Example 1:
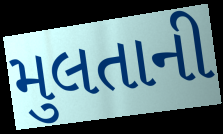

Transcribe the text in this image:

મુલતાની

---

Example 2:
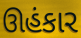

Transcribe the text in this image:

ઊહંકાર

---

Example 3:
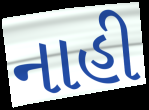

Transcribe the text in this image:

નાહી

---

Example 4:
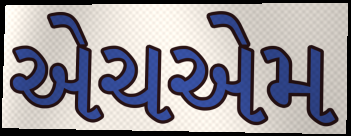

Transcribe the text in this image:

એચએમ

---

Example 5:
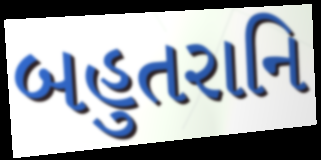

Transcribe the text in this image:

બહુતરાનિ